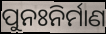
ପୁନଃନିର୍ମାଣ